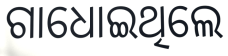
ଗାଧୋଇଥିଲେ